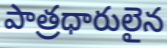
పాత్రధారులైన